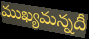
ముఖ్యమన్నదీ